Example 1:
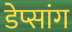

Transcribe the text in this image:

डेप्सांग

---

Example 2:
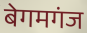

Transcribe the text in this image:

बेगमगंज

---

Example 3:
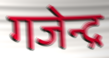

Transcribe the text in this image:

गजेन्‍द्र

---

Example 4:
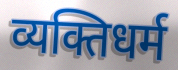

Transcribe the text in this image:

व्यक्तिधर्म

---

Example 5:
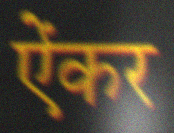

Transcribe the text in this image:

ऐंकर